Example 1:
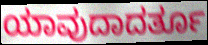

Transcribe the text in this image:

ಯಾವುದಾದರ್ತೂ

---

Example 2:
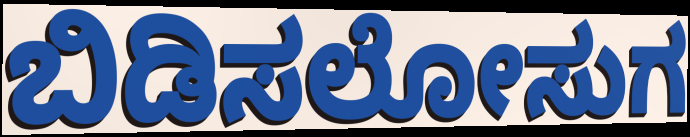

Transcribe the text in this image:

ಬಿಡಿಸಲೋಸುಗ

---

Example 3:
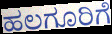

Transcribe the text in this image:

ಹಲಗೂರಿಗೆ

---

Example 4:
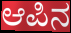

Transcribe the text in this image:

ಆಪಿನ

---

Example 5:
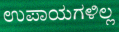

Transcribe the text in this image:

ಉಪಾಯಗಳಿಲ್ಲ